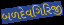
બળદેવગિરિજી